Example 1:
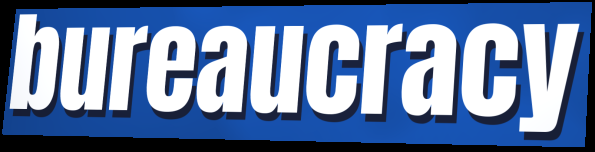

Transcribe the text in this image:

bureaucracy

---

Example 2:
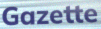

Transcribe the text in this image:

Gazette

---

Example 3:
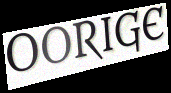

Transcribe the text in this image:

OORIGE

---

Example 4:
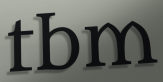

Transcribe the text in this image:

tbm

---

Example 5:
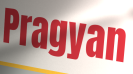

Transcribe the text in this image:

Pragyan